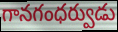
గానగంధర్వుడు